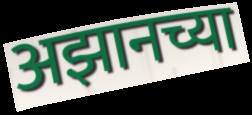
अझानच्या